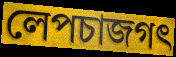
লেপচাজগৎ